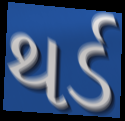
થર્ડ